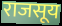
राजसूय